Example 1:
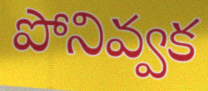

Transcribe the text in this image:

పోనివ్వక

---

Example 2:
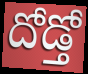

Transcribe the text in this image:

దోడ్తో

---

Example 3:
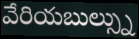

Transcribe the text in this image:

వేరియబుల్స్ను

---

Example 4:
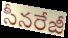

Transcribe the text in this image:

సీనరేజీ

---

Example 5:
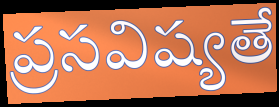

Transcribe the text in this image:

ప్రసవిష్యతే